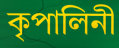
কৃপালিনী